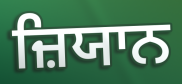
ਜ਼ਿਯਾਨ